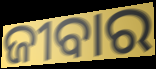
ଜୀବାର